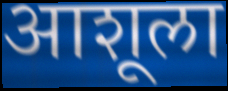
आशूला